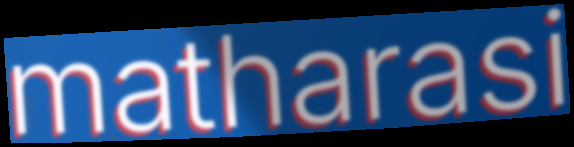
matharasi